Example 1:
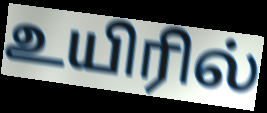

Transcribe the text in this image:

உயிரில்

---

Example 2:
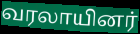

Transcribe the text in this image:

வரலாயினர்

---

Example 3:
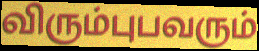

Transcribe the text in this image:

விரும்புபவரும்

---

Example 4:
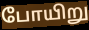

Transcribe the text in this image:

போயிறு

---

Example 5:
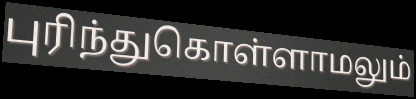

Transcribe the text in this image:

புரிந்துகொள்ளாமலும்